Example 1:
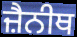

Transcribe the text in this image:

ਜ਼ੈਨੀਥ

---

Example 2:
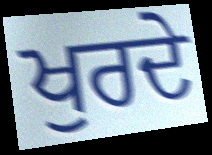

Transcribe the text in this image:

ਖੁਰਦੇ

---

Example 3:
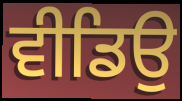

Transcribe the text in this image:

ਵੀਡਿਉ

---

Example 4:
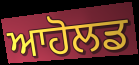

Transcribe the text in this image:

ਆਹੋਲਡ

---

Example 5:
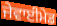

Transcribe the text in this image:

ਜੇਵਾਈਮੇਡ